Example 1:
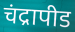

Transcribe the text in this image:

चंद्रापीड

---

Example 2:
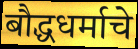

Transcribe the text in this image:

बौद्धधर्माचे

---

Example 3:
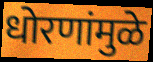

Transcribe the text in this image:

धोरणांमुळे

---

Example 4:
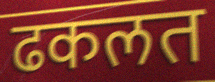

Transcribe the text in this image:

ढकलत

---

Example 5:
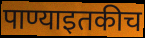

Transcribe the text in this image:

पाण्याइतकीच